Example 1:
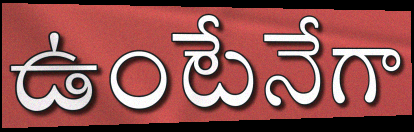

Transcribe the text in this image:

ఉంటేనేగా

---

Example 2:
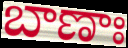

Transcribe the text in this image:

బాణాః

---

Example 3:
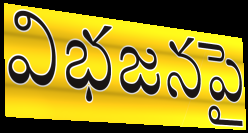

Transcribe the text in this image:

విభజనపై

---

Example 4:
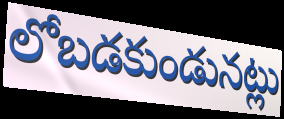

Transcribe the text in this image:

లోబడకుండునట్లు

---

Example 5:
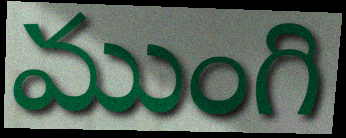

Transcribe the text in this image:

ముంగి